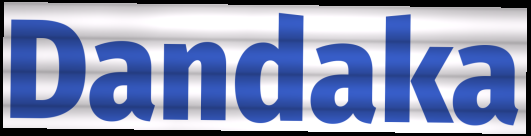
Dandaka